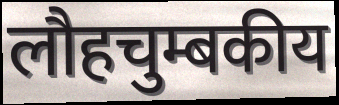
लौहचुम्बकीय